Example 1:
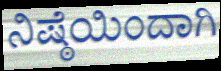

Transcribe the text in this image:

ನಿಷ್ಠೆಯಿಂದಾಗಿ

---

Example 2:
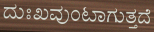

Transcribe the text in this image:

ದುಃಖವುಂಟಾಗುತ್ತದೆ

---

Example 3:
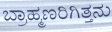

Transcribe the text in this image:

ಬ್ರಾಹ್ಮಣರಿಗಿತ್ತನು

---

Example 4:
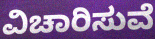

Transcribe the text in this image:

ವಿಚಾರಿಸುವೆ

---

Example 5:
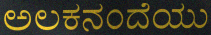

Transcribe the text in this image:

ಅಲಕನಂದೆಯು